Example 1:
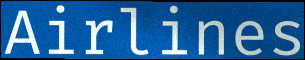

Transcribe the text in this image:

Airlines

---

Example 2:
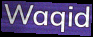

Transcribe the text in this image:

Waqid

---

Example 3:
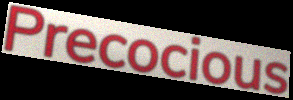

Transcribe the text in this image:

Precocious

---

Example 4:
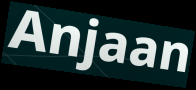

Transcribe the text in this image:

Anjaan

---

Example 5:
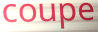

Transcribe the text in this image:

coupe